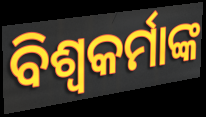
ବିଶ୍ୱକର୍ମାଙ୍କ